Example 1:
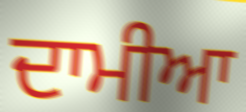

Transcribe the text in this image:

ਦਾਮੀਆ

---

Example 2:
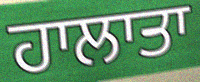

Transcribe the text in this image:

ਹਾਲਾਤਾ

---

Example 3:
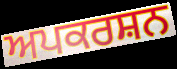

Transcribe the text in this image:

ਅਪਕਰਸ਼ਨ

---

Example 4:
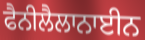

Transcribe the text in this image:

ਫੈਨੀਲੈਲਾਨਾਈਨ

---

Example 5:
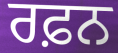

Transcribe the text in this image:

ਰਫ਼ਨ